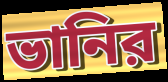
ভানির